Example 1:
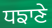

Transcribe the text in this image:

ਧਙਾਣੇ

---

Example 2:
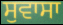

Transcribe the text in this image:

ਸੁਵਾਸਾ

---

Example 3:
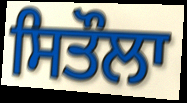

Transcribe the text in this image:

ਸਿਤੌਲਾ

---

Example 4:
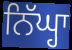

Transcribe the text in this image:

ਨਿੱਘ੍ਹਾ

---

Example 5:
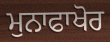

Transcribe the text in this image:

ਮੁਨਾਫਾਖੋਰ